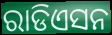
ରାଡିଏସନ